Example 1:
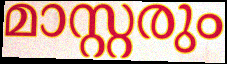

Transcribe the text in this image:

മാസ്റ്റരും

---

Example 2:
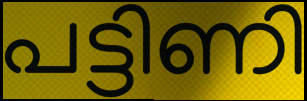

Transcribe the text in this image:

പട്ടിണി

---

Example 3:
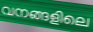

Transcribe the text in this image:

വനങ്ങളിലെ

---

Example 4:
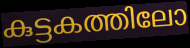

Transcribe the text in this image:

കുട്ടകത്തിലോ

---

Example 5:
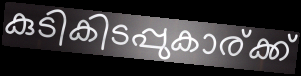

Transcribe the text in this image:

കുടികിടപ്പുകാര്ക്ക്